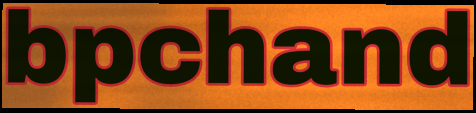
bpchand